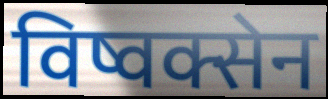
विष्वक्सेन